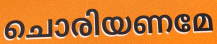
ചൊരിയണമേ